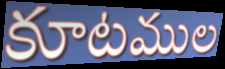
కూటముల